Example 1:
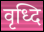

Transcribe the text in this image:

वृध्दि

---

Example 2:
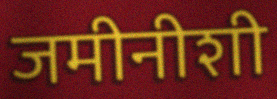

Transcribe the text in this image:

जमीनीशी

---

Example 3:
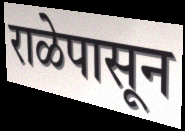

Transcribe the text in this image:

राळेपासून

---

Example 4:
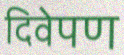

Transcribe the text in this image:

दिवेपण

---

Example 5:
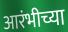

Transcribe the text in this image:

आरंभीच्या